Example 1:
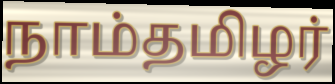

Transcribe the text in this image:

நாம்தமிழர்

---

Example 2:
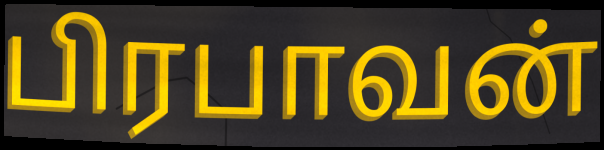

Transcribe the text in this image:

பிரபாவன்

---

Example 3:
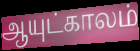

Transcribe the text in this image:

ஆயுட்காலம்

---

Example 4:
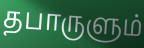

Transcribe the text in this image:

தபாருளும்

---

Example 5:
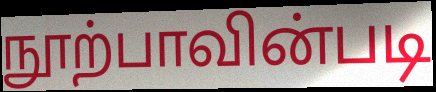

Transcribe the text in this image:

நூற்பாவின்படி